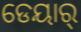
ଡେୟାର୍